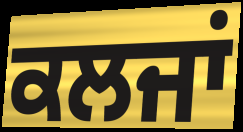
ਕਲਜਾਂ